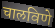
चालविणे